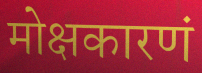
मोक्षकारणं